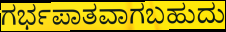
ಗರ್ಭಪಾತವಾಗಬಹುದು